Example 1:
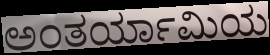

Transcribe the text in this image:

ಅಂತರ್ಯಾಮಿಯ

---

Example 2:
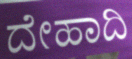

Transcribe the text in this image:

ದೇಹಾದಿ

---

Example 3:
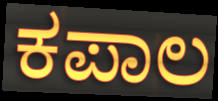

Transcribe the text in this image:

ಕಪಾಲ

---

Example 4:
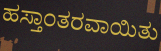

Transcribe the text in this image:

ಹಸ್ತಾಂತರವಾಯಿತು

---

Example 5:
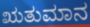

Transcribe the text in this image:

ಋತುಮಾನ